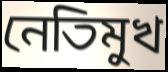
নেতিমুখ